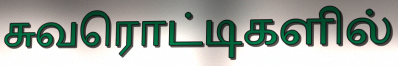
சுவரொட்டிகளில்